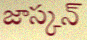
జాస్కన్